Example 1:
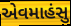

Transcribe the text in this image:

એવમાહંસુ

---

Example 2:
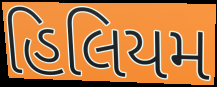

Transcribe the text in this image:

હિલિયમ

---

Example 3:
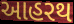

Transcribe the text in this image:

આહરથ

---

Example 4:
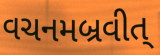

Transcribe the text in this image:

વચનમબ્રવીત્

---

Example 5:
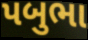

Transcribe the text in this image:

પબુભા